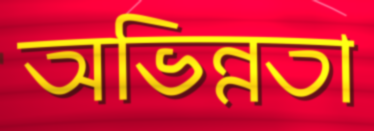
অভিন্নতা